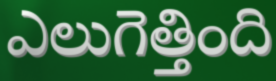
ఎలుగెత్తింది